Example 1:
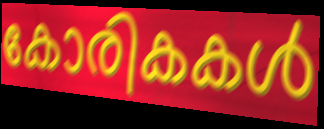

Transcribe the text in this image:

കോരികകൾ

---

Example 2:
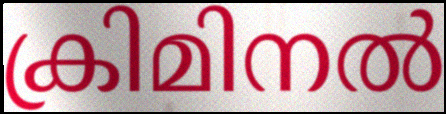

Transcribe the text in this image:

ക്രിമിനൽ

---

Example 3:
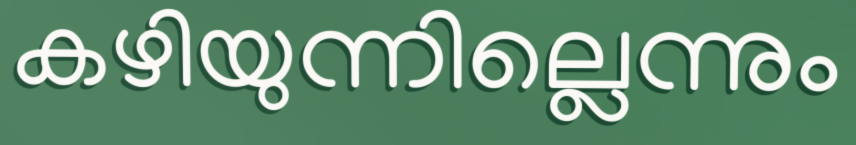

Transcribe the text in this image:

കഴിയുന്നില്ലെന്നും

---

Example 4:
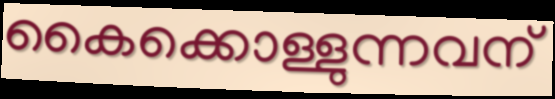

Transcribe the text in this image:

കൈക്കൊള്ളുന്നവന്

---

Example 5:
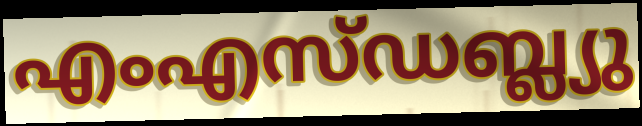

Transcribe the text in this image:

എംഎസ്ഡബ്ല്യു